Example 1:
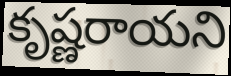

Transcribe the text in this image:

కృష్ణరాయని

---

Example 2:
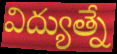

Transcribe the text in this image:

విద్యుత్నే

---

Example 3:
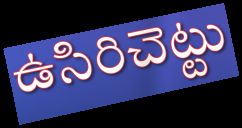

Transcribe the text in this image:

ఉసిరిచెట్టు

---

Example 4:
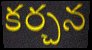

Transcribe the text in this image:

కర్చన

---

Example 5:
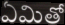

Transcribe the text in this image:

ఏమితో